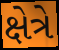
ક્ષેત્રે